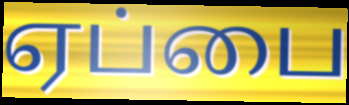
ஏப்பை